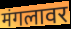
मंगलावर